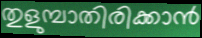
തുളുമ്പാതിരിക്കാൻ